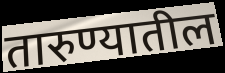
तारुण्यातील